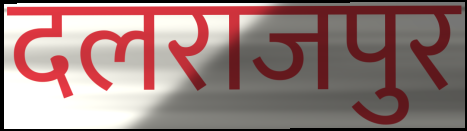
दलराजपुर